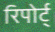
रिपोर्ट्